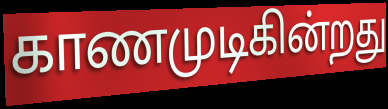
காணமுடிகின்றது